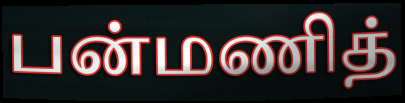
பன்மணித்